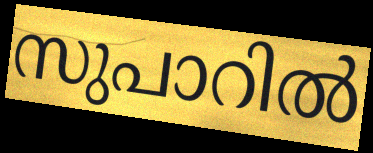
സുപാറിൽ